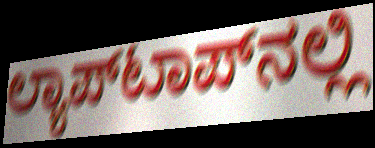
ಲ್ಯಾಪ್‌ಟಾಪ್‌ನಲ್ಲಿ